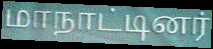
மாநாட்டினர்